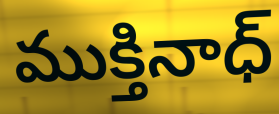
ముక్తినాధ్